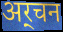
अर्चन